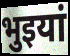
भुइयां